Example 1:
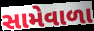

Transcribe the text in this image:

સામેવાળા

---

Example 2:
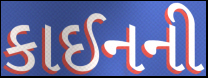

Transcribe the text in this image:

કાઈનની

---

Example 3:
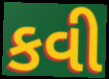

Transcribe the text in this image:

કવી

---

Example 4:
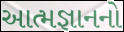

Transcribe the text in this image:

આત્મજ્ઞાનનો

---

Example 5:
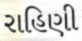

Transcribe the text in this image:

રાહિણી